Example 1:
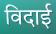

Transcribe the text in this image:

विदाई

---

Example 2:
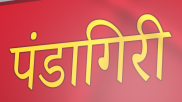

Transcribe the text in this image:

पंडागिरी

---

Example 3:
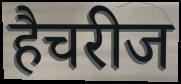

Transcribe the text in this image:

हैचरीज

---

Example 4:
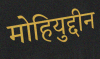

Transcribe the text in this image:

मोहियुद्दीन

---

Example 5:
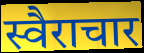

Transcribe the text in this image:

स्वैराचार